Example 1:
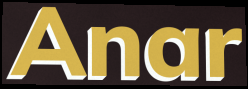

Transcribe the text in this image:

Anar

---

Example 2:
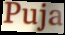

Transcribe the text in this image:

Puja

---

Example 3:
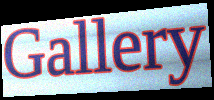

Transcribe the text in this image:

Gallery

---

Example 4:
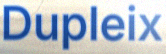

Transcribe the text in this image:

Dupleix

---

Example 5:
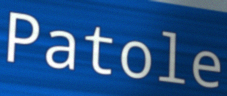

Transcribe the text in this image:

Patole